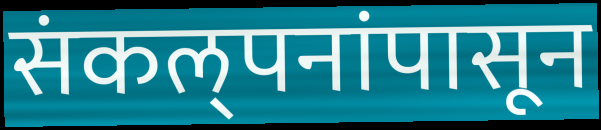
संकल्पनांपासून